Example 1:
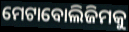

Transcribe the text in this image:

ମେଟାବୋଲିଜିମକୁ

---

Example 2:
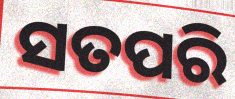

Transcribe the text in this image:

ସତପରି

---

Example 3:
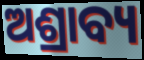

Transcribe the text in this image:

ଅଶ୍ରାବ୍ୟ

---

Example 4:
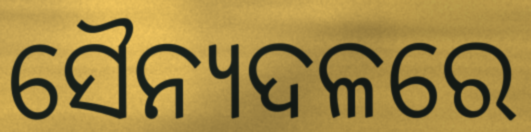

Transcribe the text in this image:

ସୈନ୍ୟଦଳରେ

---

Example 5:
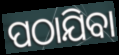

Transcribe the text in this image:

ପଠାଯିବା